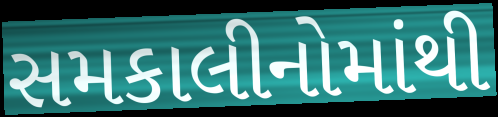
સમકાલીનોમાંથી